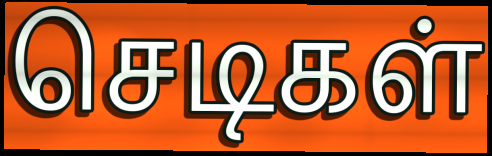
செடிகள்